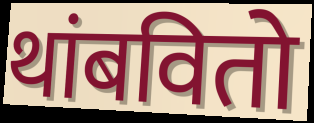
थांबवितो